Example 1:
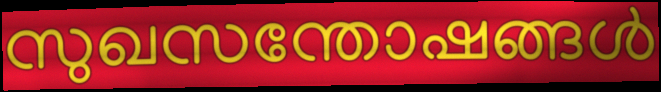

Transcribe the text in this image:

സുഖസന്തോഷങ്ങൾ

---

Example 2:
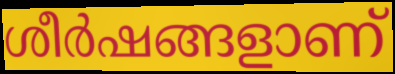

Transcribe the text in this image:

ശീർഷങ്ങളാണ്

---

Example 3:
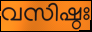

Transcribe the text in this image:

വസിഷ്ഠഃ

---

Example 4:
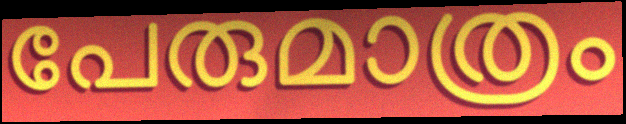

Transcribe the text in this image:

പേരുമാത്രം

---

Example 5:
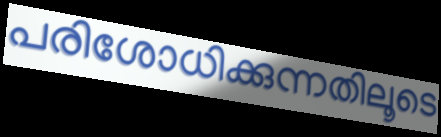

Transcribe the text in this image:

പരിശോധിക്കുന്നതിലൂടെ